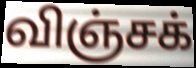
விஞ்சக்